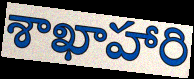
శాఖాహారి